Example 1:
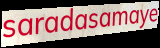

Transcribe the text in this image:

saradasamaye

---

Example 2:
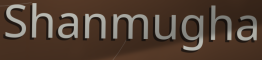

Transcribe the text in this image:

Shanmugha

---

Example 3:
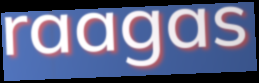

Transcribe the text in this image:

raagas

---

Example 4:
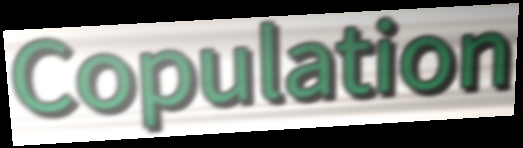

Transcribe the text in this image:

Copulation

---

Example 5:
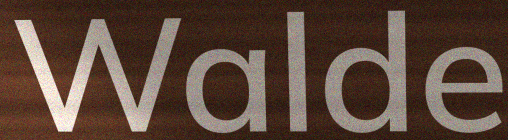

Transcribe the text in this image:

Walde